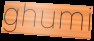
ghumi